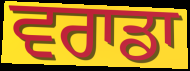
ਵਰਾਡਾ